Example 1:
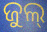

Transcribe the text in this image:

ଜୁଲ୍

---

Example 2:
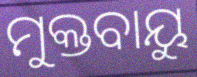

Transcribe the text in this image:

ମୁକ୍ତବାୟୁ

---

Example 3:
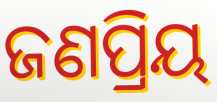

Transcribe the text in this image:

ଜଣପ୍ରିୟ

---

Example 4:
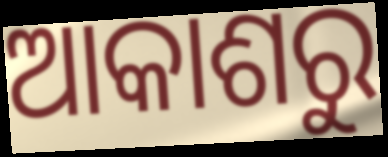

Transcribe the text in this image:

ଆକାଶରୁ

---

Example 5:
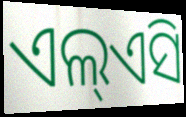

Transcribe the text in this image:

ଏଲ୍ଏସି